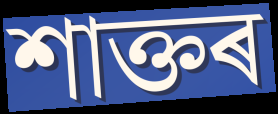
শাক্তৰ